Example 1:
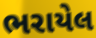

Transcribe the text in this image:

ભરાયેલ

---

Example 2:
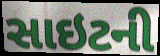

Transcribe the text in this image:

સાઇટની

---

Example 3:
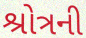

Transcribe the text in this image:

શ્રોત્રની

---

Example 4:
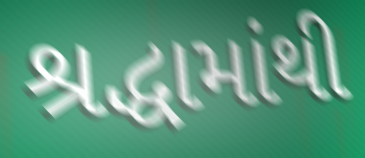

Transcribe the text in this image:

શ્રદ્ધામાંથી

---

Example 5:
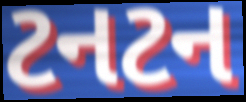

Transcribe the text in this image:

ટનટન